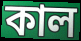
কাল